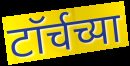
टॉर्चच्या